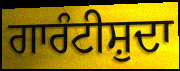
ਗਾਰੰਟੀਸ਼ੁਦਾ